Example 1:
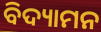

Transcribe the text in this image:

ବିଦ୍ୟାମନ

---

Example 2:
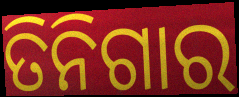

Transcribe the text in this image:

ତିନିଗାର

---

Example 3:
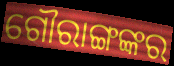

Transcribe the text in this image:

ଗୌରାଙ୍ଗଙ୍କର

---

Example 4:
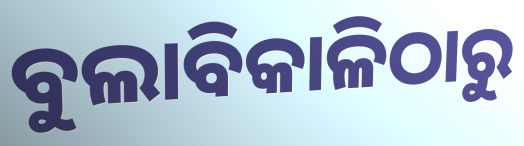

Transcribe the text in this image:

ବୁଲାବିକାଳିଠାରୁ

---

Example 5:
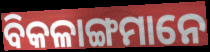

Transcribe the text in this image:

ବିକଳାଙ୍ଗମାନେ